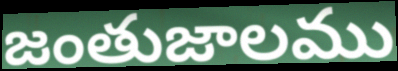
జంతుజాలము